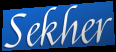
Sekher